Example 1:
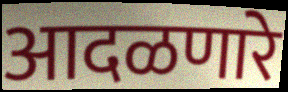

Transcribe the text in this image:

आदळणारे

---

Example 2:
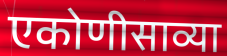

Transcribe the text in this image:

एकोणीसाव्या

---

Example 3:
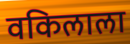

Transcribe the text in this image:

वकिलाला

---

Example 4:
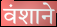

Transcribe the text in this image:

वंशाने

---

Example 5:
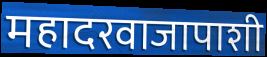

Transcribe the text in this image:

महादरवाजापाशी